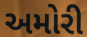
અમોરી